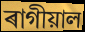
ৰাগীয়াল